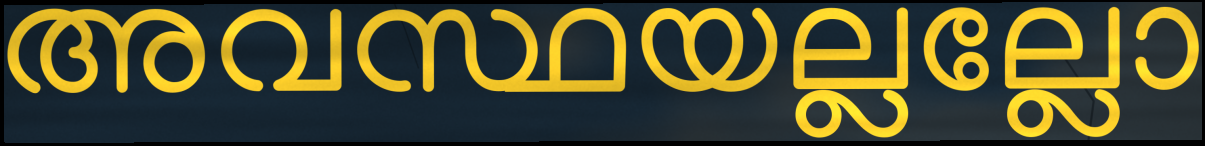
അവസ്ഥയല്ലല്ലോ